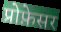
प्रोफ़ेसर